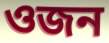
ওজন